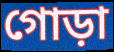
গোড়া